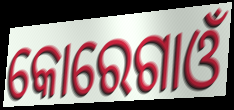
କୋରେଗାଓଁ